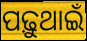
ପଢ଼ୁଥାଇଁ